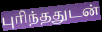
புரிந்ததுடன்